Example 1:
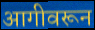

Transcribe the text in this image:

आगीवरून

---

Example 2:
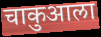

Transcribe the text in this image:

चाकुआला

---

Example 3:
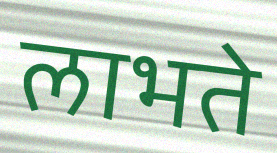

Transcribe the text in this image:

लाभते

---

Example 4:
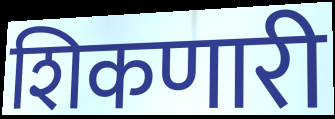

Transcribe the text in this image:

शिकणारी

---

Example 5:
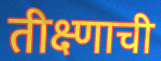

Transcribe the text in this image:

तीक्ष्णाची